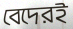
বেদেরই